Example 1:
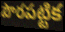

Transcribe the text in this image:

పౌరపట్టిక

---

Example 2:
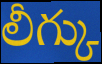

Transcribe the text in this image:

లీగ్కు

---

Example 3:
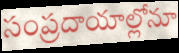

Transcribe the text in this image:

సంప్రదాయాల్లోనూ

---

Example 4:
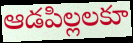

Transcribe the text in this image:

ఆడపిల్లలకూ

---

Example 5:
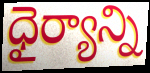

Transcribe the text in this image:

ధైర్యాన్ని